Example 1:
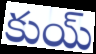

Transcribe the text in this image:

కుయ్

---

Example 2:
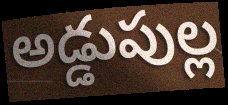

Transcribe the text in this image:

అడ్డుపుల్ల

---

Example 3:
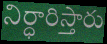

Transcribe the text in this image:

నిర్ధారిస్తారు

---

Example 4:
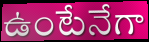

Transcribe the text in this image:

ఉంటేనేగా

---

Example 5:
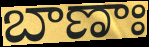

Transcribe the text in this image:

బాణాః